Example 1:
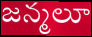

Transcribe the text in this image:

జన్మలూ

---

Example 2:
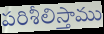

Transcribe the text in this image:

పరిశీలిస్తాము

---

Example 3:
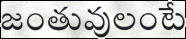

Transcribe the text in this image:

జంతువులంటే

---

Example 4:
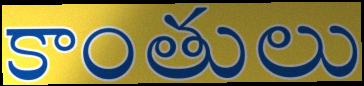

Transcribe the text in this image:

కాంతులు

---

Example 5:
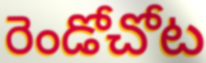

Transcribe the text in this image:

రెండోచోట